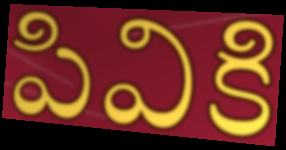
పివికి